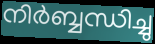
നിർബ്ബന്ധിച്ചു